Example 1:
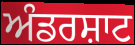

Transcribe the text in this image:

ਅੰਡਰਸ਼ਾਟ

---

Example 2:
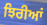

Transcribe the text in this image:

ਝਿਰੀਆਂ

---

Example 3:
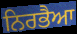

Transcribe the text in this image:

ਨਿਰਭੈਆ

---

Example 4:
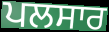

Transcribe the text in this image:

ਪਲਸਾਰ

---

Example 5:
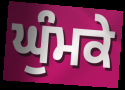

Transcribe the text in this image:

ਘੁੰਮਕੇ